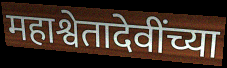
महाश्वेतादेवींच्या